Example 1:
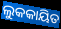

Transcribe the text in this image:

ଲୁକକାୟିତ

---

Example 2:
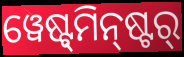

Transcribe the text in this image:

ୱେଷ୍ଟ୍‌ମିନ୍‌ଷ୍ଟର୍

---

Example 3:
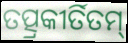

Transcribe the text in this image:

ତତ୍ପ୍ରକୀର୍ତିତମ୍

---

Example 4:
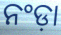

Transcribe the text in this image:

ନଂଡ଼ା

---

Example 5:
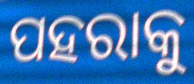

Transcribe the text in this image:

ପହରାକୁ